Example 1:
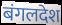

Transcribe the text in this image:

बंगलदेश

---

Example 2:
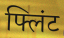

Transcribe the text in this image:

फ्लिंट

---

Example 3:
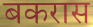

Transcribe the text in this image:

बकरास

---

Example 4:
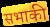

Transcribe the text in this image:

सभाकी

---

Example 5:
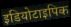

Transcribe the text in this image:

इडियोटाइपिक